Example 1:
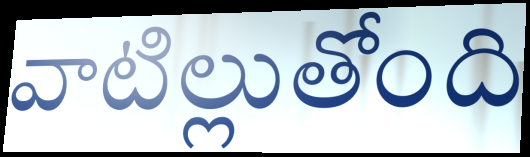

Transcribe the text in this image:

వాటిల్లుతోంది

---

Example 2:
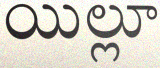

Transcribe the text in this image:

యిల్లూ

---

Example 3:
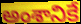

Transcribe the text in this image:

అంశానికే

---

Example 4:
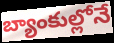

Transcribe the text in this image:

బ్యాంకుల్లోనే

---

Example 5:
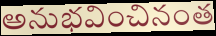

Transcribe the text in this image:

అనుభవించినంత